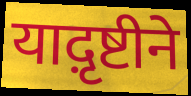
याद़ृष्टीने